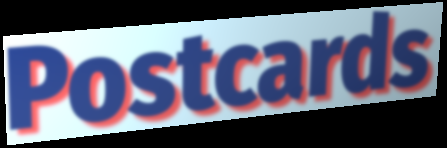
Postcards